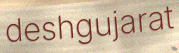
deshgujarat